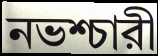
নভশ্চারী